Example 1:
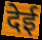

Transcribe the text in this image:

देई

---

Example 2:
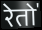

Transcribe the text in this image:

रेतो॑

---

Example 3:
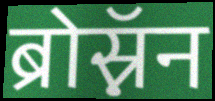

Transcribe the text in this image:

ब्रोस्नॅन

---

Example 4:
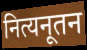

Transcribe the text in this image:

नित्यनूतन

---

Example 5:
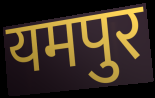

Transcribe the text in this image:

यमपुर